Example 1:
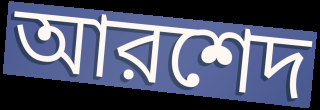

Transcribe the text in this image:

আরশেদ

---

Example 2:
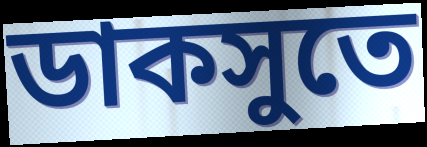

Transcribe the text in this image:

ডাকসুতে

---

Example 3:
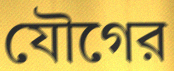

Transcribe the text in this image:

যৌগের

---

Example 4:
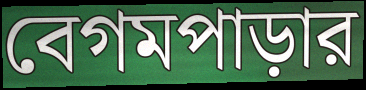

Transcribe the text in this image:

বেগমপাড়ার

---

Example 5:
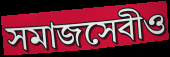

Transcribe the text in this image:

সমাজসেবীও